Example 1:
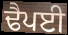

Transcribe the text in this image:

ਢੈਪਈ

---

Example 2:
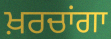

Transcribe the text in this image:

ਖ਼ਰਚਾਂਗਾ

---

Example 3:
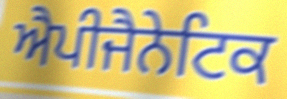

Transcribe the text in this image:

ਐਪੀਜੈਨੇਟਿਕ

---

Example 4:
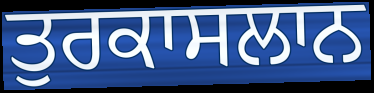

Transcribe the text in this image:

ਤੁਰਕਾਸਲਾਨ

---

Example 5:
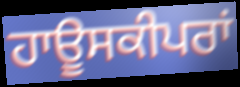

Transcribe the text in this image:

ਹਾਊਸਕੀਪਰਾਂ